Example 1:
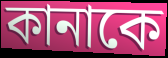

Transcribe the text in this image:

কানাকে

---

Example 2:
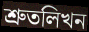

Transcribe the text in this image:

শ্রুতলিখন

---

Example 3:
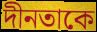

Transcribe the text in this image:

দীনতাকে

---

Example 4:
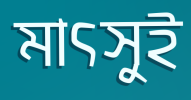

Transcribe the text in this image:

মাৎসুই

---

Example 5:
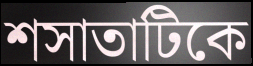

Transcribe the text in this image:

শসাতাটিকে